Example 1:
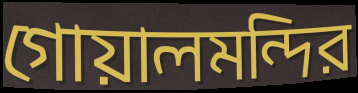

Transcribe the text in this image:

গোয়ালমন্দির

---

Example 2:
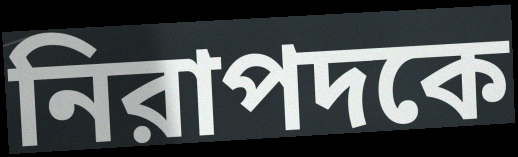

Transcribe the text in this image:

নিরাপদকে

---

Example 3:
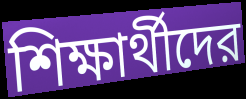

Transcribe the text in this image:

শিক্ষার্থীদের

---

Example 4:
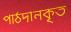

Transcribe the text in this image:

পাঠদানকৃত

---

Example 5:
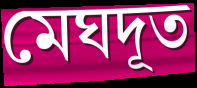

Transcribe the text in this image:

মেঘদূত